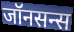
जॉनसन्स